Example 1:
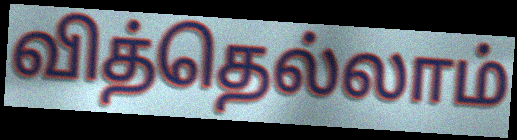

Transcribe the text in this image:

வித்தெல்லாம்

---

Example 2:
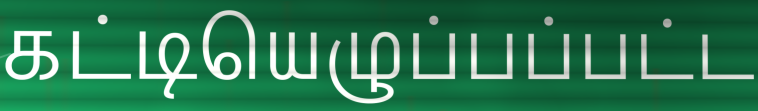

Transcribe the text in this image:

கட்டியெழுப்பப்பட்ட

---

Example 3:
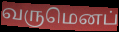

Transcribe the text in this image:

வருமெனப்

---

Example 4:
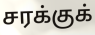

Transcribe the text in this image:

சரக்குக்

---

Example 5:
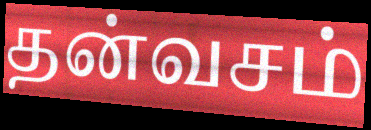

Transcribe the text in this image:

தன்வசம்